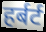
हर्बर्ट